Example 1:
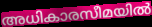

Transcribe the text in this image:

അധികാരസീമയിൽ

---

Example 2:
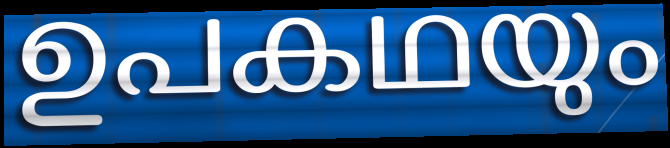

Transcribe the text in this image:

ഉപകഥയും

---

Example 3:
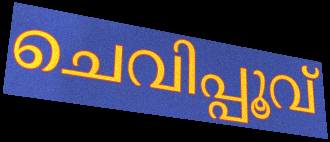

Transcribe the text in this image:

ചെവിപ്പൂവ്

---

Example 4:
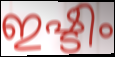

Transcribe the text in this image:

ഇഷ്ടിം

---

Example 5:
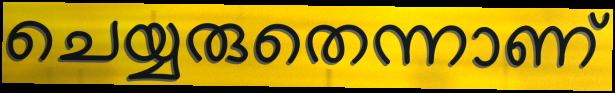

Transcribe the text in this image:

ചെയ്യരുതെന്നാണ്